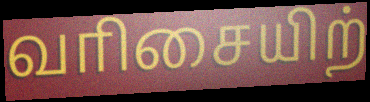
வரிசையிற்